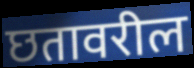
छतावरील